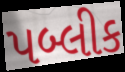
પબ્લીક